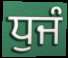
ਧੁਜੰ